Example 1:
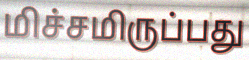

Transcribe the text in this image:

மிச்சமிருப்பது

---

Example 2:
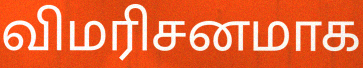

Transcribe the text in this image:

விமரிசனமாக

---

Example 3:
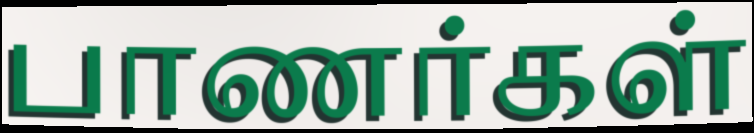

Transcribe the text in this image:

பாணர்கள்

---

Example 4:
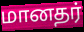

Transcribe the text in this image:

மானதர்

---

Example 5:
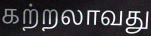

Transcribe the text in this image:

கற்றலாவது